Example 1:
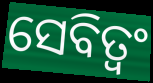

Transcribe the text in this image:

ସେବିତ୍ୱଂ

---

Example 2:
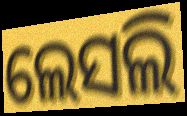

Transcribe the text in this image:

ଲେସଲି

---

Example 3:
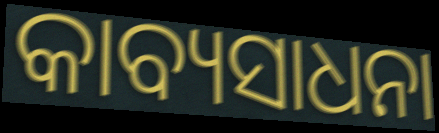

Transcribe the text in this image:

କାବ୍ୟସାଧନା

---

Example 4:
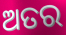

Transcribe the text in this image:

ଅତର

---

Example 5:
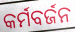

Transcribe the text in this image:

କର୍ମବର୍ଜନ